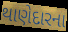
થાણેદારના